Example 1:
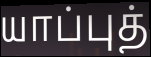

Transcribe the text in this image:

யாப்புத்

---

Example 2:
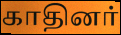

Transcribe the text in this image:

காதினர்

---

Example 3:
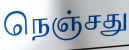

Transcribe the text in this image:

நெஞ்சது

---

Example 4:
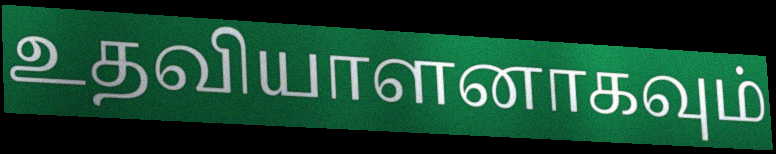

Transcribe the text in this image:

உதவியாளனாகவும்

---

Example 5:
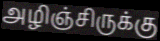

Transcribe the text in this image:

அழிஞ்சிருக்கு